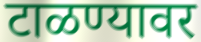
टाळण्यावर